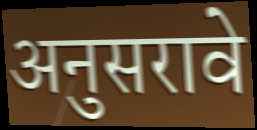
अनुसरावे